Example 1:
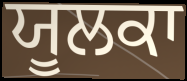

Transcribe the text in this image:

ਯੂਲਕਾ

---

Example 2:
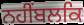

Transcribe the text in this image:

ਨਹੀਂਬਲਕਿ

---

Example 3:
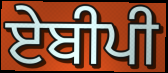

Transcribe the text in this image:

ਏਬੀਪੀ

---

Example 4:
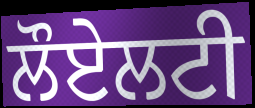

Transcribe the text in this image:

ਲੌਏਲਟੀ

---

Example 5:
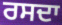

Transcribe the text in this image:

ਰਸਦਾ